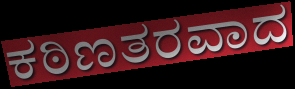
ಕಠಿಣತರವಾದ